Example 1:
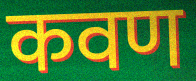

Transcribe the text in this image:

कवण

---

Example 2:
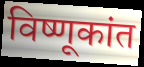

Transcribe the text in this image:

विष्णूकांत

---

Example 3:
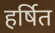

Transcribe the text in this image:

हर्षित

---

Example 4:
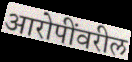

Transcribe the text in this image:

आरोपींवरील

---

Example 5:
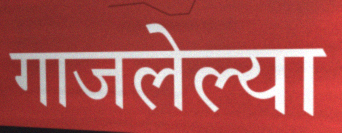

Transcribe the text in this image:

गाजलेल्या